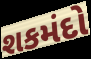
શકમંદો